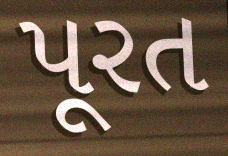
પૂરત